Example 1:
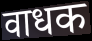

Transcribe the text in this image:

वाधक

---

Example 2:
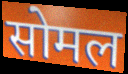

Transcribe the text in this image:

सोमल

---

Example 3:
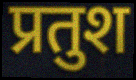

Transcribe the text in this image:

प्रतुश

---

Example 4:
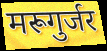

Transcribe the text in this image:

मरूगुर्जर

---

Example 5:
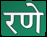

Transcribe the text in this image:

रणे